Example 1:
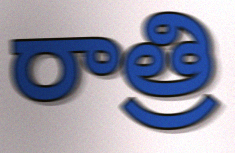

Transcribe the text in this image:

రాత్రి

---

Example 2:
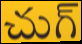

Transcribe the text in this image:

చుగ్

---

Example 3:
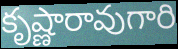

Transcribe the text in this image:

కృష్ణారావుగారి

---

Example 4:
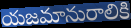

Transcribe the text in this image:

యజమానురాలికి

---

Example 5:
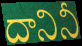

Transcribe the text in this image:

దానినీ